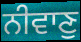
ਨੀਵਾਣੁ